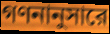
গণনানুসারে